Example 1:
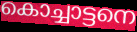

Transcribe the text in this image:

കൊച്ചാട്ടനെ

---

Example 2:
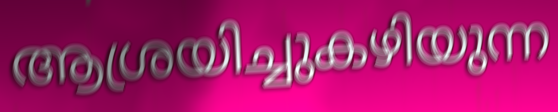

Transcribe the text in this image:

ആശ്രയിച്ചുകഴിയുന്ന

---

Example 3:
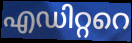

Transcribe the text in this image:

എഡിറ്ററെ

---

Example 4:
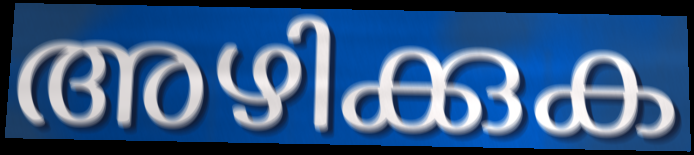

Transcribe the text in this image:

അഴിക്കുക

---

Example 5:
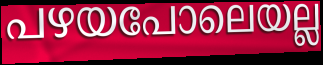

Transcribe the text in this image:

പഴയപോലെയല്ല